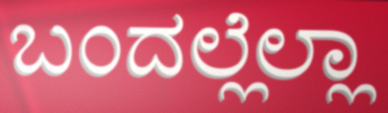
ಬಂದಲ್ಲೆಲ್ಲಾ